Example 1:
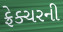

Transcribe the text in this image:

ફ્રેક્ચરની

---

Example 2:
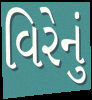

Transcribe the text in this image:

વિરેનું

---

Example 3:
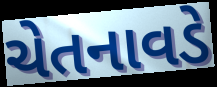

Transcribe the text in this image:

ચેતનાવડે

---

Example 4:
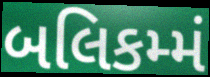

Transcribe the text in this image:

બલિકમ્મં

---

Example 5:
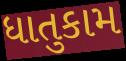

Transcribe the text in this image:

ધાતુકામ